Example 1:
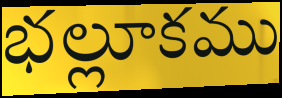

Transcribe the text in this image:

భల్లూకము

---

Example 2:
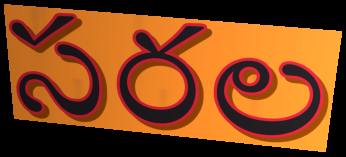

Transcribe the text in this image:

సరల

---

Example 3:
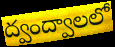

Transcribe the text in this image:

ద్వంద్వాలలో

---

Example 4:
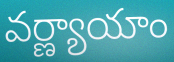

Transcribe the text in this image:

వర్ణ్యాయాం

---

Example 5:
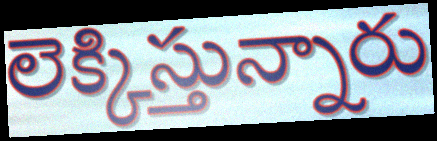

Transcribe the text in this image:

లెక్కిస్తున్నారు